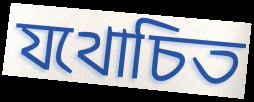
যথোচিত